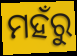
ମହଁରୁ